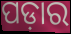
ପଡ଼ାର